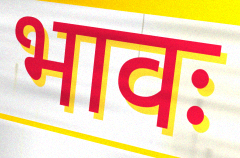
भावः